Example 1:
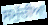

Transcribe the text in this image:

ਸਮੁੱਚੀਆ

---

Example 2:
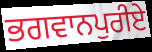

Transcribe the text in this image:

ਭਗਵਾਨਪੁਰੀਏ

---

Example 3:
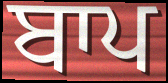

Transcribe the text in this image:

ਬਾਪ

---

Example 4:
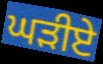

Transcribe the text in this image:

ਘੜੀਏ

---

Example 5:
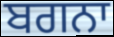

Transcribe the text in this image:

ਬਗਨਾ